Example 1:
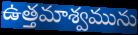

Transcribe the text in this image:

ఉత్తమాశ్వమును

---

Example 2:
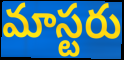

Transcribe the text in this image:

మాస్టరు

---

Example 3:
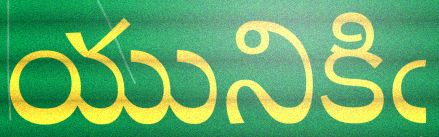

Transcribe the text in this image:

యునికిఁ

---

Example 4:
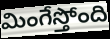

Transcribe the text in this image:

మింగేస్తోంది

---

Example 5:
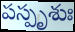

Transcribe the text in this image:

పస్పృశుః